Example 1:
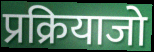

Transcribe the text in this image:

प्रक्रियाजो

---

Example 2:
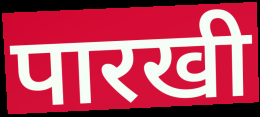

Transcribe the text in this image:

पारखी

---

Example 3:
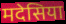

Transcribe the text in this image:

मदेसिया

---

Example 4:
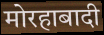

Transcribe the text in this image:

मोरहाबादी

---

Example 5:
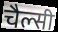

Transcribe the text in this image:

चैल्सी